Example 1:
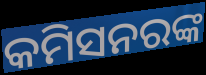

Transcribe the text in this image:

କମିସନରଙ୍କ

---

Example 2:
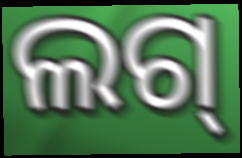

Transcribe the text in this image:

ଲଗ୍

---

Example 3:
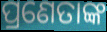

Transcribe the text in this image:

ପ୍ରଣେତାଙ୍କ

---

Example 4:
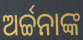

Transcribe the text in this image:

ଅର୍ଚ୍ଚନାଙ୍କ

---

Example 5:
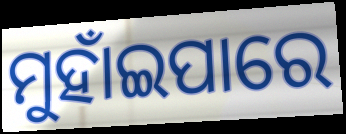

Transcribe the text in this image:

ମୁହାଁଇପାରେ